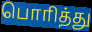
பொரித்து